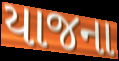
યાજના